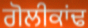
ਗੋਲੀਕਾਂਢ